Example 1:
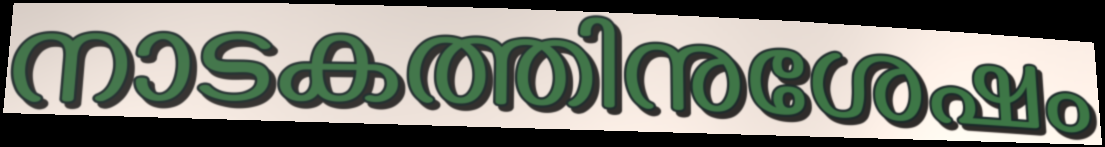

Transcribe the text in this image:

നാടകത്തിനുശേഷം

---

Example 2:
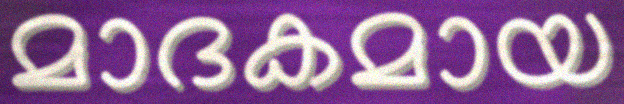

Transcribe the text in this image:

മാദകമായ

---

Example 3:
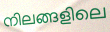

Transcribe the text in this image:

നിലങ്ങളിലെ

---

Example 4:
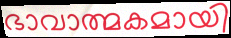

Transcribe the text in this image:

ഭാവാത്മകമായി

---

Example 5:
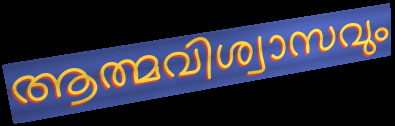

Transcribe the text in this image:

ആത്മവിശ്വാസവും